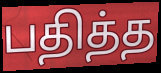
பதித்த